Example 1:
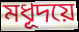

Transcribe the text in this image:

মধূদয়ে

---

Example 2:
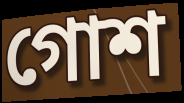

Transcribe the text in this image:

গোশ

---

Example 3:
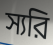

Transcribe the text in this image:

স্যরি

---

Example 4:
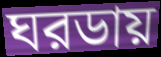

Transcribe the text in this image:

ঘরডায়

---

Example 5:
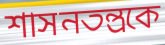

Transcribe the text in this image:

শাসনতন্ত্রকে